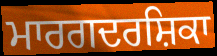
ਮਾਰਗਦਰਸ਼ਿਕਾ